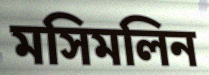
মসিমলিন